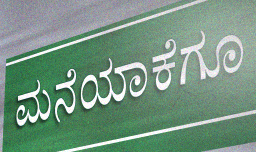
ಮನೆಯಾಕೆಗೂ